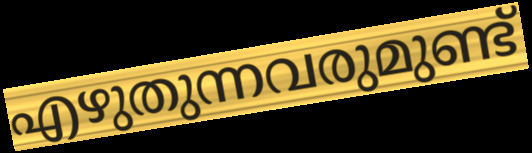
എഴുതുന്നവരുമുണ്ട്